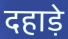
दहाड़े